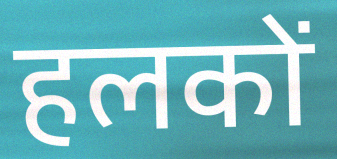
हलकों